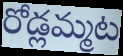
రోడ్లమ్మట